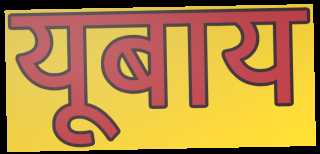
यूबाय